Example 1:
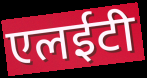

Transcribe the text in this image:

एलईटी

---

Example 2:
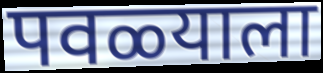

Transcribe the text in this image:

पवळ्याला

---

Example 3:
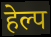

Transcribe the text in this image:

हेल्प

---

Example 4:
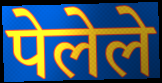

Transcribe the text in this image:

पेलेले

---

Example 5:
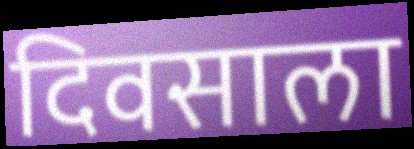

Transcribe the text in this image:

दिवसाला